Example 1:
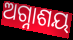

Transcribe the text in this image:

ଅଗ୍ନାଶୟ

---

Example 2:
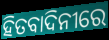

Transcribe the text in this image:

ହିତବାଦିନୀରେ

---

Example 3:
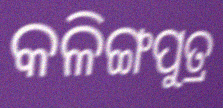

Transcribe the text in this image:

କଳିଙ୍ଗପୁତ୍ର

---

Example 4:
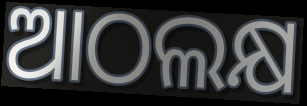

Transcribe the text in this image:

ଆଠଲକ୍ଷ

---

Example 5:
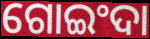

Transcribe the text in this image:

ଗୋଇଂଦା